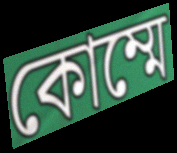
কোম্মে